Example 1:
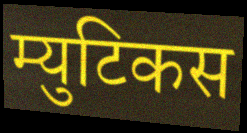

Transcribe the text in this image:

म्युटिकस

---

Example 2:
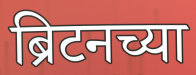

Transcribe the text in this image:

ब्रिटनच्या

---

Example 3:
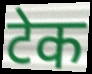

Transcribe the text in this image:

टेक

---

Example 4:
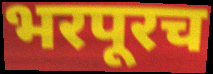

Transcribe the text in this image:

भरपूरच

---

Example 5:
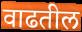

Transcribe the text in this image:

वाढतील